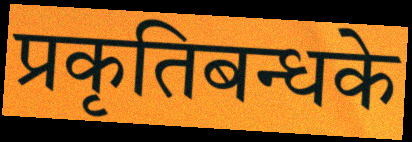
प्रकृतिबन्धके